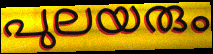
പുലയരും